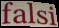
falsi